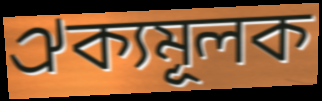
ঐক্যমূলক